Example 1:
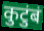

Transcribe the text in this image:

कुटुंबं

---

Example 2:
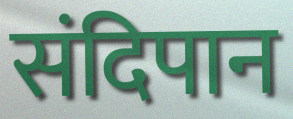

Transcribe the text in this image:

संदिपान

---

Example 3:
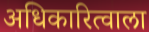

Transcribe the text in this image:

अधिकारित्वाला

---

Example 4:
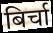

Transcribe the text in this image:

बिर्चा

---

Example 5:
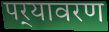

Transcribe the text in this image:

पर्यावरण